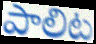
పాలిట